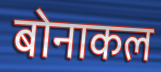
बोनाकल